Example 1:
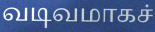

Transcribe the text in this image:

வடிவமாகச்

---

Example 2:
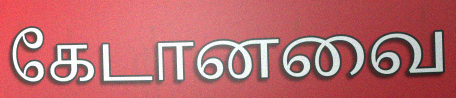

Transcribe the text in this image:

கேடானவை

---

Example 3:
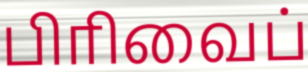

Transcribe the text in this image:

பிரிவைப்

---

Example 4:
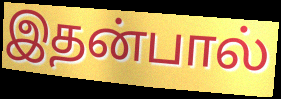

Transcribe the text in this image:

இதன்பால்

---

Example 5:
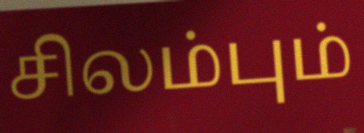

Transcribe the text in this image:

சிலம்பும்